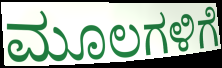
ಮೂಲಗಳಿಗೆ